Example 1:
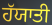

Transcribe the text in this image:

ਹੱਯਾਤੀ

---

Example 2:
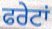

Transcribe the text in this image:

ਫਰੇਟਾਂ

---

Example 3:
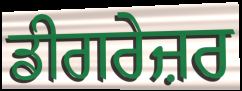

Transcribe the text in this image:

ਡੀਗਰੇਜ਼ਰ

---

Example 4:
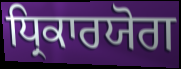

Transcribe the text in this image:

ਧ੍ਰਿਕਾਰਯੋਗ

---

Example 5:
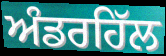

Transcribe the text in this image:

ਅੰਡਰਹਿੱਲ